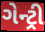
ગેન્ટ્રી